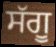
ਸੱਗੂ